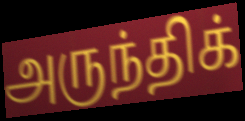
அருந்திக்